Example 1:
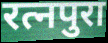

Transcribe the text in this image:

रत्नपुरा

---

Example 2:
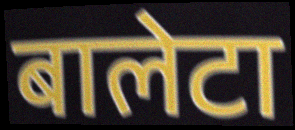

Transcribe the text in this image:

बालेटा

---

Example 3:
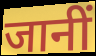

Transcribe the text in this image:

जानीं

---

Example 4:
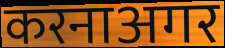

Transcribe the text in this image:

करनाअगर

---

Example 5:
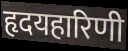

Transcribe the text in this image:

हृदयहारिणी